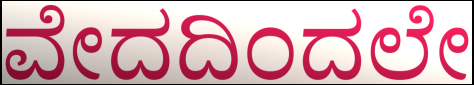
ವೇದದಿಂದಲೇ